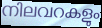
നിലവറകളും